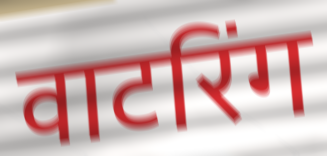
वाटरिंग